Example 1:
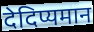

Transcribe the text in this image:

देदिप्यमान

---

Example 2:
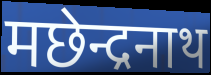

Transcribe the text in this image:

मछेन्द्रनाथ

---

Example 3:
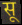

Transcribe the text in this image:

सू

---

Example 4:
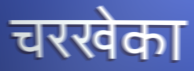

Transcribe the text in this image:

चरखेका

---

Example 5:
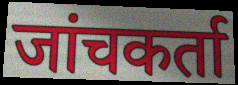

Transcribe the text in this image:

जांचकर्ता